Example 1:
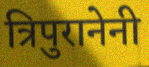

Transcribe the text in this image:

त्रिपुरानेनी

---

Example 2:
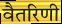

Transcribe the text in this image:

वैतरिणी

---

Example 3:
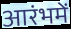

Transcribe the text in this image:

आरंभमें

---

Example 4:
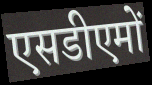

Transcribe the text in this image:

एसडीएमों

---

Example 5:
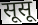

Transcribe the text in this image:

सूसू